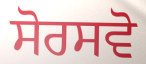
ਸੋਰਸਵੋ